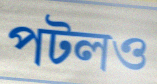
পটলও